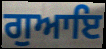
ਗੁਆਇ